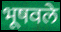
भूषवले